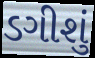
ડગીશું